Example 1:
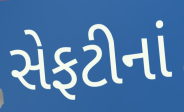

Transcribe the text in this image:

સેફટીનાં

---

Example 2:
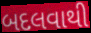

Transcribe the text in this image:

બદલવાથી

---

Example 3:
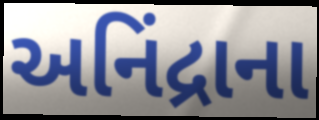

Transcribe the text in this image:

અનિંદ્રાના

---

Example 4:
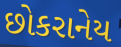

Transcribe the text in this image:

છોકરાનેય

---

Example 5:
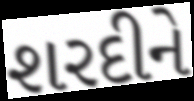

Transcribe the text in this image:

શરદીને